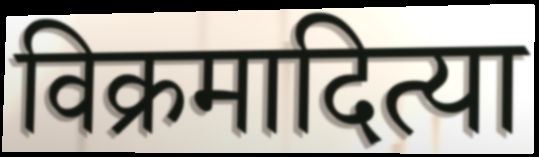
विक्रमादित्या